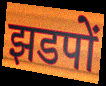
झडपों